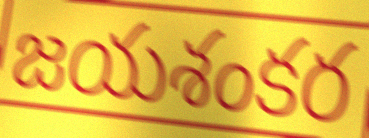
జయశంకర